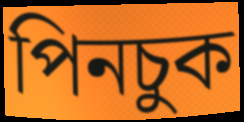
পিনচুক